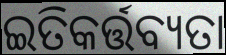
ଇତିକର୍ତ୍ତବ୍ୟତା